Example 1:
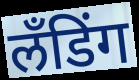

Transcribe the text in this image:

लँडिंग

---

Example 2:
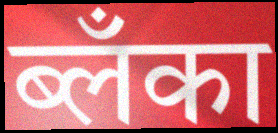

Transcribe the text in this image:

ब्लँका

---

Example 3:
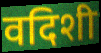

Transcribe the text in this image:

वदिशी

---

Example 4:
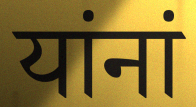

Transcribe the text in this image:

यांनां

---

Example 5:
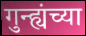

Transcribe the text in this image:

गुन्ह्यंच्या